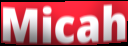
Micah